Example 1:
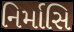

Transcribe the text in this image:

નિર્માસિ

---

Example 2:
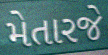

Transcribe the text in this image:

મેતારજે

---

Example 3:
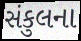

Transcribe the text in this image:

સંકુલના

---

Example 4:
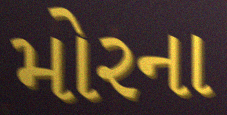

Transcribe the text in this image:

મોરના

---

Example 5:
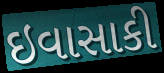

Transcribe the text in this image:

ઇવાસાકી